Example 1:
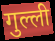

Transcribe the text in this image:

गुल्ली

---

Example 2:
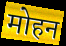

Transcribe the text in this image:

मोहन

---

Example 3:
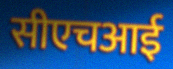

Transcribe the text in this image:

सीएचआई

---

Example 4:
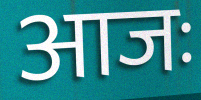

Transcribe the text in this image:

आजः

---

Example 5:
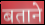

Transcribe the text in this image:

बताने